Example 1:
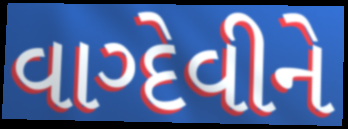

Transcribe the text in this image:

વાગ્દેવીને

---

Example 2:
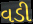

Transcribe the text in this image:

વડી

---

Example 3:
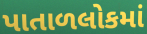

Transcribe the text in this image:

પાતાળલોકમાં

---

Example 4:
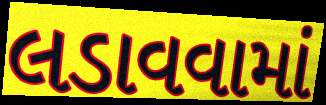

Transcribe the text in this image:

લડાવવામાં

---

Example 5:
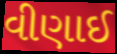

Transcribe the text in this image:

વીણાઈ